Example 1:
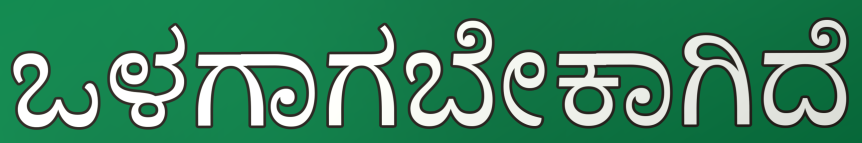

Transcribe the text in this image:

ಒಳಗಾಗಬೇಕಾಗಿದೆ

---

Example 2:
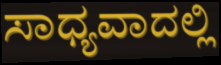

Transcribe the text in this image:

ಸಾಧ್ಯವಾದಲ್ಲಿ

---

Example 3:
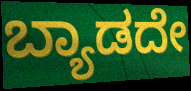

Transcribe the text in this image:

ಬ್ಯಾಡದೇ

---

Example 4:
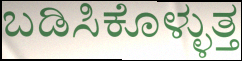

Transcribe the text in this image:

ಬಡಿಸಿಕೊಳ್ಳುತ್ತ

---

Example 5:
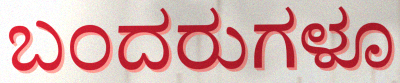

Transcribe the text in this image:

ಬಂದರುಗಳೂ